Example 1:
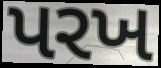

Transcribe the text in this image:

પરખ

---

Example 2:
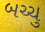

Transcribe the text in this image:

બચ્ચુ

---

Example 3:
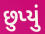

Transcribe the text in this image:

છુપ્યું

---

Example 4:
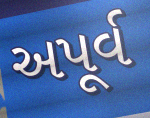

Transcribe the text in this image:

અપૂર્વ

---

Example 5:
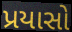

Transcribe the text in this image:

પ્રયાસો